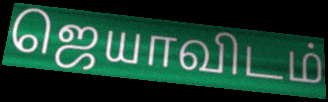
ஜெயாவிடம்